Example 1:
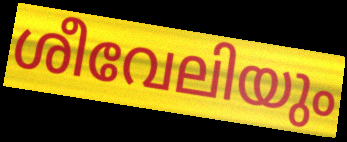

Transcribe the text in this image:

ശീവേലിയും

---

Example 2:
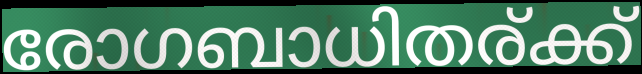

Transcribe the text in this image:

രോഗബാധിതര്ക്ക്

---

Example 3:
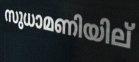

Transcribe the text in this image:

സുധാമണിയില്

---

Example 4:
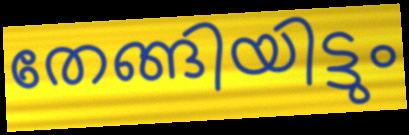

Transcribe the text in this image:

തേങ്ങിയിട്ടും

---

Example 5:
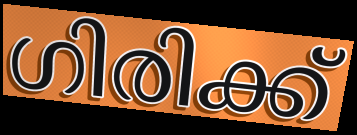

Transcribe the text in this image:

ഗിരിക്ക്